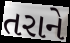
તરાને